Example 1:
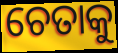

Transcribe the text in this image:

ଚେତାକୁ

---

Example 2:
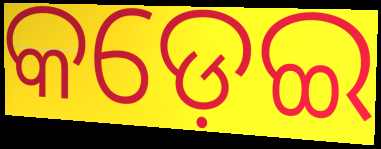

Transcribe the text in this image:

କଡ଼େଇ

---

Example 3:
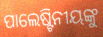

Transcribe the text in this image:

ପାଲେଷ୍ଟିନୀୟଙ୍କୁ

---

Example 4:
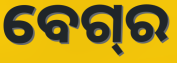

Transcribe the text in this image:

ବେଗ୍‌ର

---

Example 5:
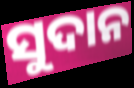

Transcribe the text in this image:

ସୁଦାନ